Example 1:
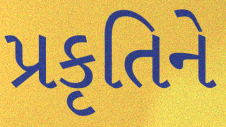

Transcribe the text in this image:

પ્રકૃતિને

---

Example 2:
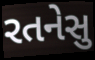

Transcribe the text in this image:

રતનેસુ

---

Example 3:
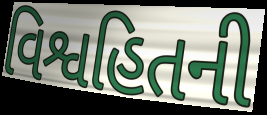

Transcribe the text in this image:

વિશ્વહિતની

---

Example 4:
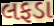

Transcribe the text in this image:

લફડા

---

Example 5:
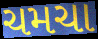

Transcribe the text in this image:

ચમચા